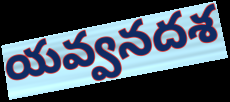
యవ్వనదశ